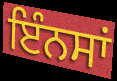
ਇੰਨਸਾਂ